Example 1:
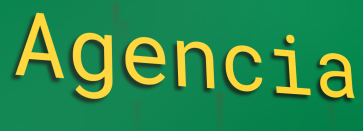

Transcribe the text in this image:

Agencia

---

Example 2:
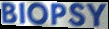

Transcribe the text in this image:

BIOPSY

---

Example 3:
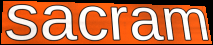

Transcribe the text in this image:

sacram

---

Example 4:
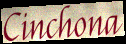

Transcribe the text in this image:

Cinchona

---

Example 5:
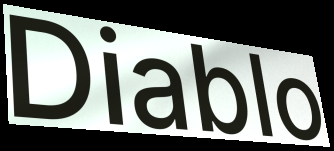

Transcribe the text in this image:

Diablo